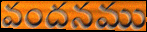
వందనము